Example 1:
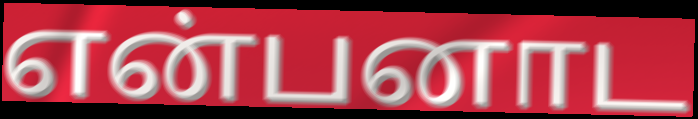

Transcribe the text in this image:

என்பனாட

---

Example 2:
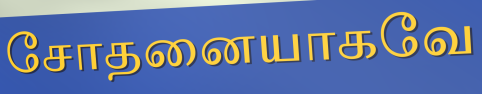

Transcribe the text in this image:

சோதனையாகவே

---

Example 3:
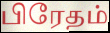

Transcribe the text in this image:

பிரேதம்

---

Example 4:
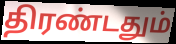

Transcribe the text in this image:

திரண்டதும்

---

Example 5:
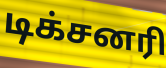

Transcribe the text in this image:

டிக்சனரி